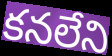
కనలేని